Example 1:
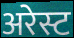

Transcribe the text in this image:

अरेस्ट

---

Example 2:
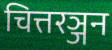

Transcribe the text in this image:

चित्तरञ्जन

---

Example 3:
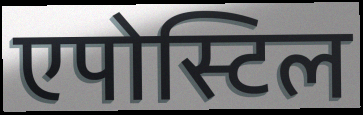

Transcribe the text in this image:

एपोस्टिल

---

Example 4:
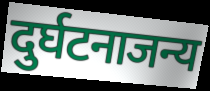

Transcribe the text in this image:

दुर्घटनाजन्य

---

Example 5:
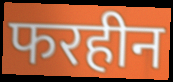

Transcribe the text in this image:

फरहीन